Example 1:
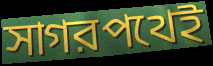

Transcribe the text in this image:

সাগরপথেই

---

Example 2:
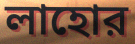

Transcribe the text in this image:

লাহোর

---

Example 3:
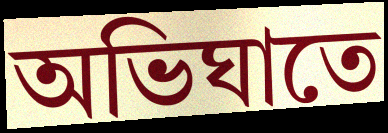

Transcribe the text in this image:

অভিঘাতে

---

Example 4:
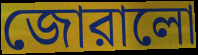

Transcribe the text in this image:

জোরালো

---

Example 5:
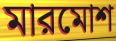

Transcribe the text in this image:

মারমোশ